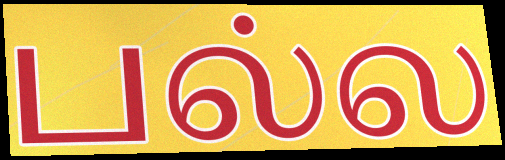
பல்ல